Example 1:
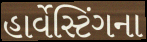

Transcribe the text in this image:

હાર્વેસ્ટિંગના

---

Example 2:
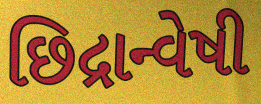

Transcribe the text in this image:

છિદ્રાન્વેષી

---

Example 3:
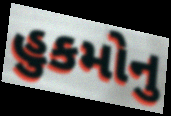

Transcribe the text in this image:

હુકમોનુ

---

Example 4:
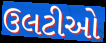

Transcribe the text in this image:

ઉલટીઓ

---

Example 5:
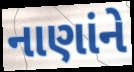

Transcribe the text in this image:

નાણાંને